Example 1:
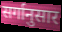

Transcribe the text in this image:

सर्गानुसार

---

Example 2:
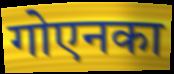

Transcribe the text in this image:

गोएनका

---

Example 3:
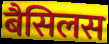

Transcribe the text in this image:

बैसिलस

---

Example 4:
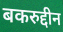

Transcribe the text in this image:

बकरुद्दीन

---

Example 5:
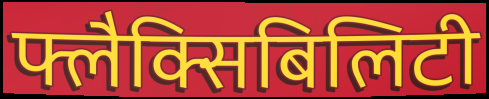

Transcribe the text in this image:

फ्लैक्सिबिलिटी